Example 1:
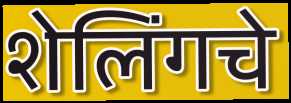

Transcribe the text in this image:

शेलिंगचे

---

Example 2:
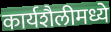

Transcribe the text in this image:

कार्यशैलीमध्ये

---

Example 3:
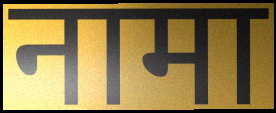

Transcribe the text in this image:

नामा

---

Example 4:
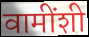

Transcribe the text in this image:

वामींशी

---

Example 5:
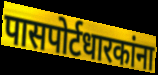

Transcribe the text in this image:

पासपोर्टधारकांना